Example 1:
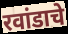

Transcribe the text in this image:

रवांडाचे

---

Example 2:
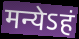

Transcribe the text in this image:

मन्येऽहं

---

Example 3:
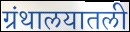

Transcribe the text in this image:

ग्रंथालयातली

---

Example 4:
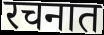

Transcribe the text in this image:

रचनात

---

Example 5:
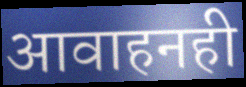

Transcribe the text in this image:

आवाहनही